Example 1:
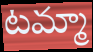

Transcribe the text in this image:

టమ్మా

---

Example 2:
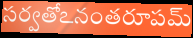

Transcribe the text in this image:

సర్వతోఽనంతరూపమ్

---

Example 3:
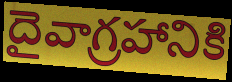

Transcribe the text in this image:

దైవాగ్రహానికి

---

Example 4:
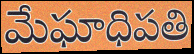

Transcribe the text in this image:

మేఘాధిపతి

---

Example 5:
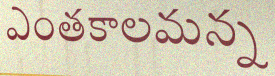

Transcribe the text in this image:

ఎంతకాలమన్న